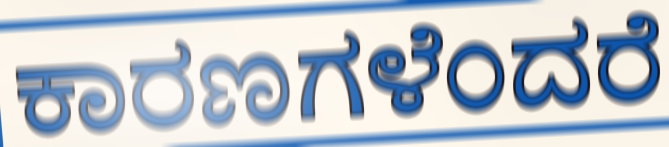
ಕಾರಣಗಳೆಂದರೆ